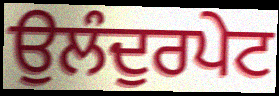
ਉਲੰਦੁਰਪੇਟ